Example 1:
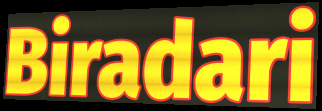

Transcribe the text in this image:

Biradari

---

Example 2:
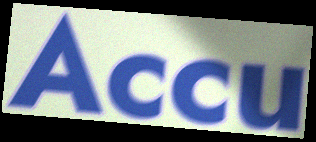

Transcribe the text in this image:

Accu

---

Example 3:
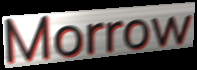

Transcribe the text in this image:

Morrow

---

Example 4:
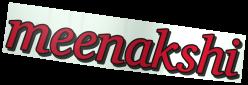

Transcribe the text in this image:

meenakshi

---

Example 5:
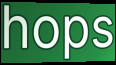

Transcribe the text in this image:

hops